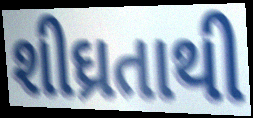
શીઘ્રતાથી